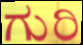
ಗುರಿ